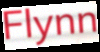
Flynn